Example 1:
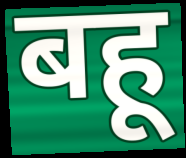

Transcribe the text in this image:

बहू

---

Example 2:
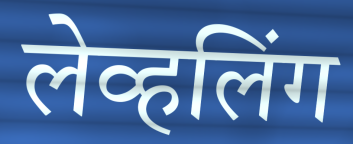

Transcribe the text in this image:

लेव्हलिंग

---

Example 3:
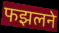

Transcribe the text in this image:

फझलने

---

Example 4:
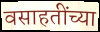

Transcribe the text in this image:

वसाहतींच्या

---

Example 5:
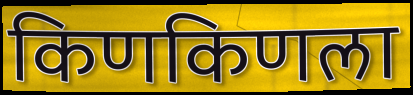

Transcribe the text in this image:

किणकिणला